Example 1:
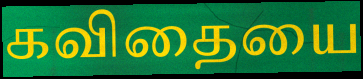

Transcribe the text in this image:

கவிதையை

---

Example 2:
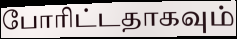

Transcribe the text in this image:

போரிட்டதாகவும்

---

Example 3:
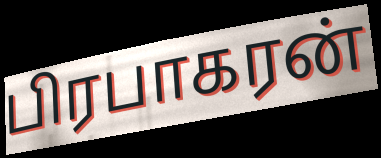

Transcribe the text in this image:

பிரபாகரன்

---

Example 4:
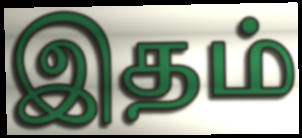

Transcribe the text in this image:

இதம்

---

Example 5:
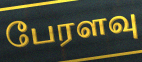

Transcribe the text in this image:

பேரளவு